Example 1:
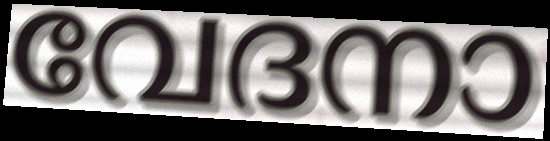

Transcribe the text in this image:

വേദനാ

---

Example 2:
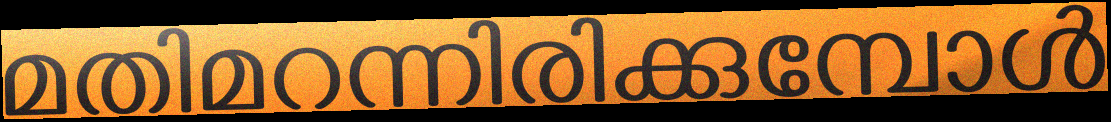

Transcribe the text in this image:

മതിമറന്നിരിക്കുമ്പോൾ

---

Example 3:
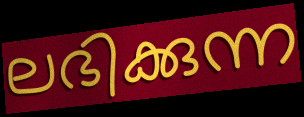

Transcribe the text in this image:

ലഭിക്കുന്ന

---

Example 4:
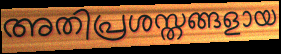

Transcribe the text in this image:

അതിപ്രശസ്തങ്ങളായ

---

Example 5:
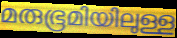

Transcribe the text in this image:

മരുഭൂമിയിലുള്ള